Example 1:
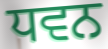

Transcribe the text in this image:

ਧਵਨ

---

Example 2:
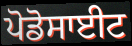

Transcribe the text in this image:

ਪੋਡੋਸਾਈਟ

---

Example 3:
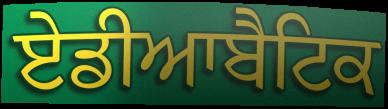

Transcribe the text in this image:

ਏਡੀਆਬੈਟਿਕ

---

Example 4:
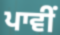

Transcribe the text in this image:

ਪਾਵੀਂ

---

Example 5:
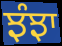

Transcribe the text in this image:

ਝੰਝਾ